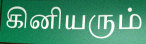
கினியரும்